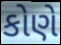
કોણે